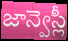
జాన్వెస్లీ